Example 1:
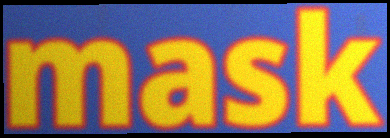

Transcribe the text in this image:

mask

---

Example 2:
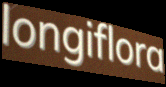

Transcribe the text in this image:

longiflora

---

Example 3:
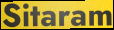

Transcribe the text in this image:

Sitaram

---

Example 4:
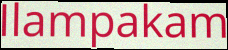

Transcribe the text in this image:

Ilampakam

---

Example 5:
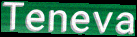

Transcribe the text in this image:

Teneva